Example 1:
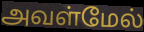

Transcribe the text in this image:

அவள்மேல்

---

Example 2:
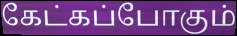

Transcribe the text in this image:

கேட்கப்போகும்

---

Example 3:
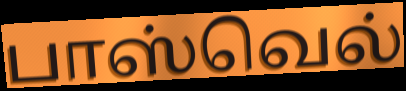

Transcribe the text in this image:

பாஸ்வெல்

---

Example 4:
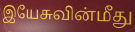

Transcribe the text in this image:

இயேசுவின்மீது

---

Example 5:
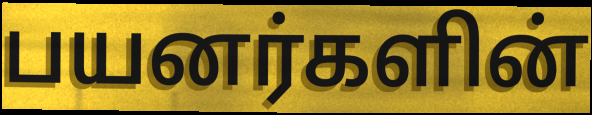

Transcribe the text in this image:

பயனர்களின்